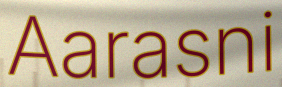
Aarasni